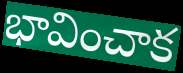
భావించాక